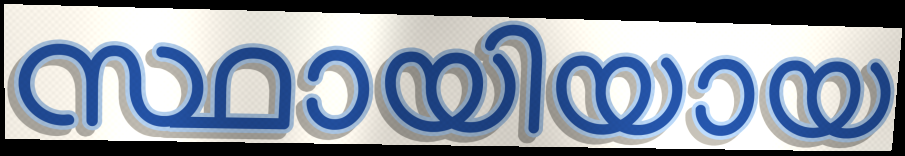
സ്ഥായിയായ